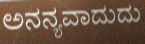
ಅನನ್ಯವಾದುದು